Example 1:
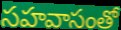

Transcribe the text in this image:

సహవాసంతో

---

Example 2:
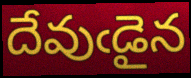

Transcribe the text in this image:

దేవుఁడైన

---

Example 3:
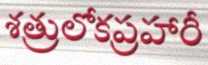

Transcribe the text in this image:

శత్రులోకప్రహారీ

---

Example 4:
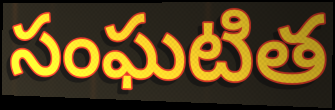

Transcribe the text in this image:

సంఘటిత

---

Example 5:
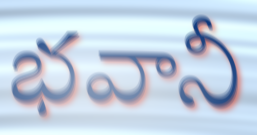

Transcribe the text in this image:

భవానీ